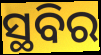
ସ୍ଥବିର